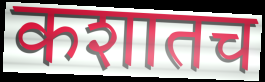
कशातच